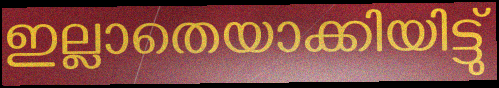
ഇല്ലാതെയാക്കിയിട്ടു്